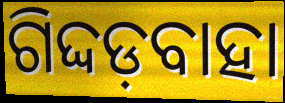
ଗିଦ୍ଦଡ଼ବାହା